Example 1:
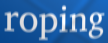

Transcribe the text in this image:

roping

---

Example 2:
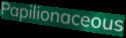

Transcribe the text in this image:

Papilionaceous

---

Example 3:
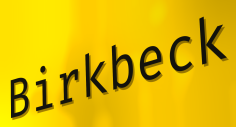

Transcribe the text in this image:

Birkbeck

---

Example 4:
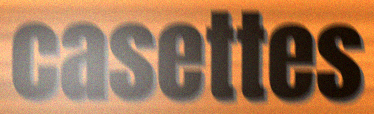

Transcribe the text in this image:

casettes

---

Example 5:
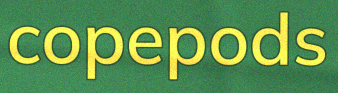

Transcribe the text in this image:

copepods